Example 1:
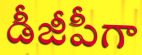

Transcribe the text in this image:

డీజీపీగా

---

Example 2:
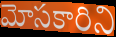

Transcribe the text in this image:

మోసకారిని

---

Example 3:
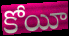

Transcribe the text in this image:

కోయీ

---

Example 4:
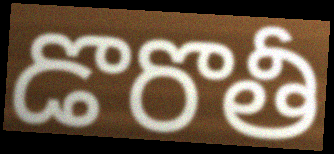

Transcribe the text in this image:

డొరొతీ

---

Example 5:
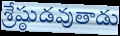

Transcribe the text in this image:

శ్రేష్ఠుడవుతాడు